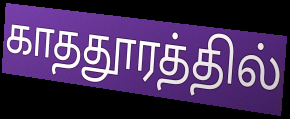
காததூரத்தில்